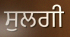
ਸੁਲਗੀ